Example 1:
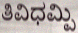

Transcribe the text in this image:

ತಿವಿಧಮ್ಪಿ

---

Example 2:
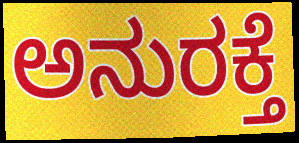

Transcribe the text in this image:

ಅನುರಕ್ತೆ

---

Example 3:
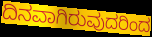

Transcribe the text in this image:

ದಿನವಾಗಿರುವುದರಿಂದ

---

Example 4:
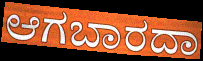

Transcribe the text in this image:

ಆಗಬಾರದಾ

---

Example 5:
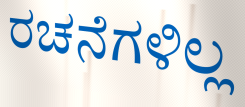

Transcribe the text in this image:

ರಚನೆಗಳಿಲ್ಲ